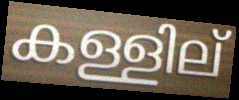
കള്ളില്